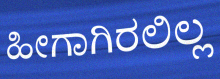
ಹೀಗಾಗಿರಲಿಲ್ಲ